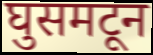
घुसमटून